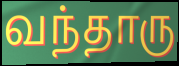
வந்தாரு